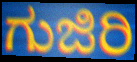
ಗುಜಿರಿ